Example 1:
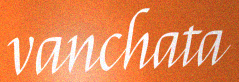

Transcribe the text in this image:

vanchata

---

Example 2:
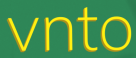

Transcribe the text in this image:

vnto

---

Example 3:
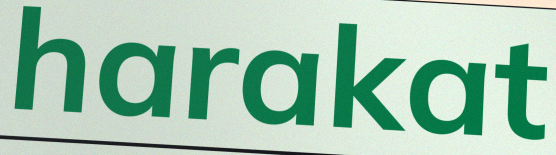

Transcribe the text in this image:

harakat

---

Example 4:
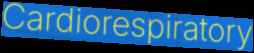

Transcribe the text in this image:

Cardiorespiratory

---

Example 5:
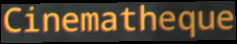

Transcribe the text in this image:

Cinematheque